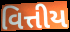
વિત્તીય